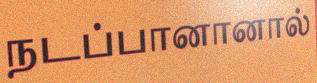
நடப்பானானால்